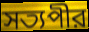
সত্যপীর